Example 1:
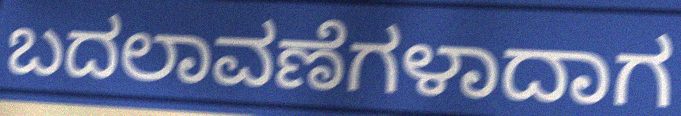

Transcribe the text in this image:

ಬದಲಾವಣೆಗಳಾದಾಗ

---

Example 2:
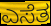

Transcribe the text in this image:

ಎಸೆತ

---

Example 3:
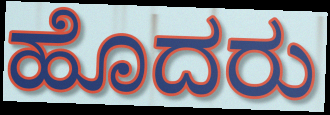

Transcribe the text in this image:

ಹೊದರು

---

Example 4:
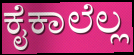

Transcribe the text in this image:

ಕೈಕಾಲೆಲ್ಲ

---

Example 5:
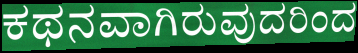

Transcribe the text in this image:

ಕಥನವಾಗಿರುವುದರಿಂದ